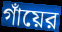
গাঁয়ের